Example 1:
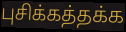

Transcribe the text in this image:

புசிக்கத்தக்க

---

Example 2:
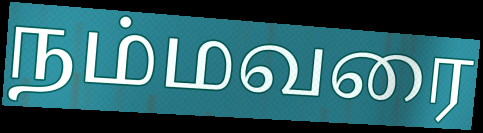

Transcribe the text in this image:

நம்மவரை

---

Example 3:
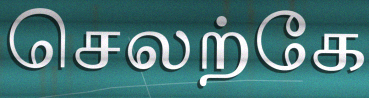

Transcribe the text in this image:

செலற்கே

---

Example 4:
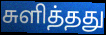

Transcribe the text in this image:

சுளித்தது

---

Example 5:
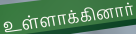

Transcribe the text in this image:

உள்ளாக்கினார்